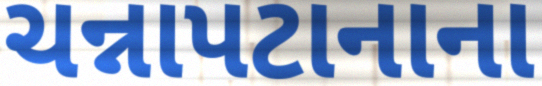
ચન્નાપટાનાના